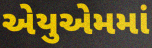
એયુએમમાં